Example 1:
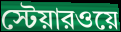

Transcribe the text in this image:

স্টেয়ারওয়ে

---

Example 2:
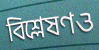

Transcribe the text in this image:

বিশ্লেষণও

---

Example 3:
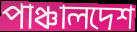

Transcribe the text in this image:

পাঞ্চালদেশ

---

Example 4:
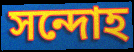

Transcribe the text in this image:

সন্দোহ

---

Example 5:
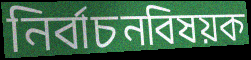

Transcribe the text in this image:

নির্বাচনবিষয়ক